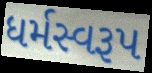
ધર્મસ્વરૂપ